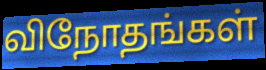
விநோதங்கள்